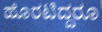
ಹೊರಟಿದ್ದರೂ